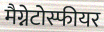
मैग्नेटोस्फीयर